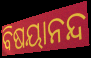
ବିଷୟାନନ୍ଦ